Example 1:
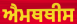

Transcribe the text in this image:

ਐਮਥਥੀਸ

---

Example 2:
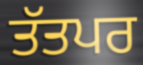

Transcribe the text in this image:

ਤੱਤਪਰ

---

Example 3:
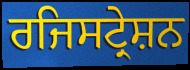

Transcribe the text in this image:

ਰਜਿਸਟ੍ਰੇਸ਼ਨ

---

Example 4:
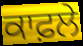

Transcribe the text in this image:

ਕਾਫ਼ਲੇ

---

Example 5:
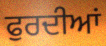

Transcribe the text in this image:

ਫੁਰਦੀਆਂ